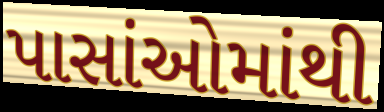
પાસાંઓમાંથી